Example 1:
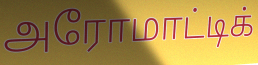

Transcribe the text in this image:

அரோமாட்டிக்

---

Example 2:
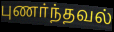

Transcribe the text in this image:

புணர்ந்தவல்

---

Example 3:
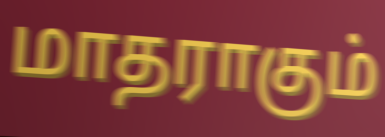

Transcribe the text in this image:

மாதராகும்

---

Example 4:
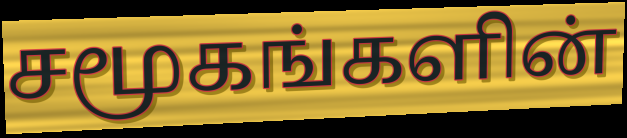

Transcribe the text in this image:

சமூகங்களின்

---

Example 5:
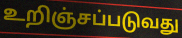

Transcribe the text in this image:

உறிஞ்சப்படுவது